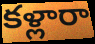
కళ్లారా